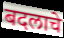
बदलाचे